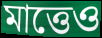
মাত্তেও